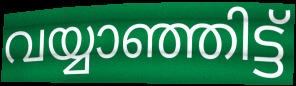
വയ്യാഞ്ഞിട്ട്